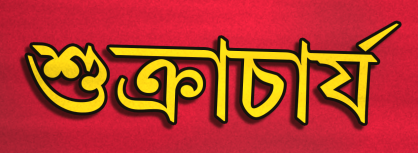
শুক্রাচার্য